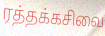
ரத்தக்கசிவை